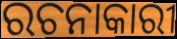
ରଚନାକାରୀ